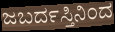
ಜಬರ್ದಸ್ತಿನಿಂದ